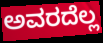
ಅವರದೆಲ್ಲ